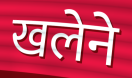
खलेने